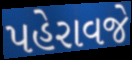
પહેરાવજે